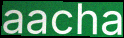
aacha